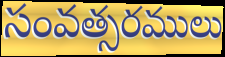
సంవత్సరములు